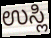
ಉಸ್ಲಿ